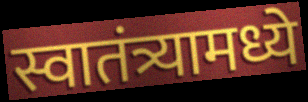
स्वातंत्र्यामध्ये